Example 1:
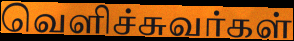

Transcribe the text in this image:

வெளிச்சுவர்கள்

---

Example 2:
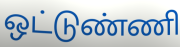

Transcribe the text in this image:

ஒட்டுண்ணி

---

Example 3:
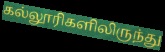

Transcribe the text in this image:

கல்லூரிகளிலிருந்து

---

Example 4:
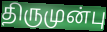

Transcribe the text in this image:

திருமுன்பு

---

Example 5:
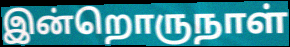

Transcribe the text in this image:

இன்றொருநாள்